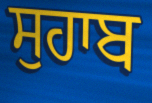
ਸੁਹਾਬ